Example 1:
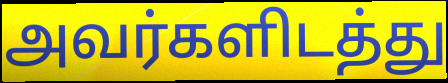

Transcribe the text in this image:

அவர்களிடத்து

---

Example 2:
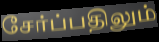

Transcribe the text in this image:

சேர்ப்பதிலும்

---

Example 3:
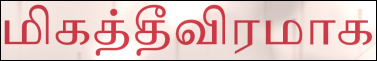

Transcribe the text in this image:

மிகத்தீவிரமாக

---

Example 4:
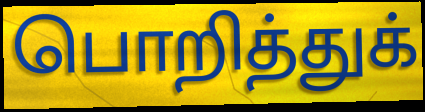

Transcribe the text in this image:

பொறித்துக்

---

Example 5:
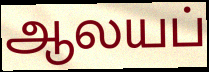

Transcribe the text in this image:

ஆலயப்